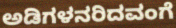
ಅಡಿಗಳನರಿದವಂಗೆ